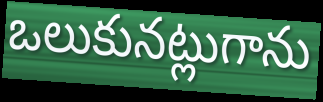
ఒలుకునట్లుగాను